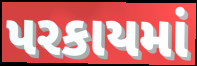
પરકાયમાં